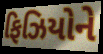
ફિઝિયોને